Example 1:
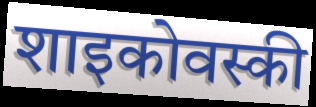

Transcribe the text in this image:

शाइकोवस्की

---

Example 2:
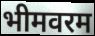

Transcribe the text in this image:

भीमवरम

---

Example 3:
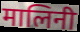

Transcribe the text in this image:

मालिनी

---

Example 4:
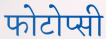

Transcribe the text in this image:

फोटोप्सी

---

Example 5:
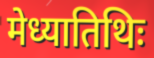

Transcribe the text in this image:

मेध्यातिथिः